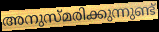
അനുസ്മരിക്കുന്നുണ്ട്